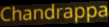
Chandrappa